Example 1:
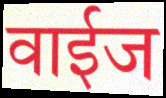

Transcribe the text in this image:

वाईज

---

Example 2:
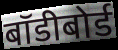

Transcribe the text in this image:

बॉडीबोर्ड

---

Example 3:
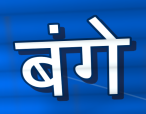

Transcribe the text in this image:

बंगे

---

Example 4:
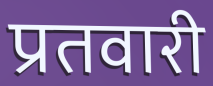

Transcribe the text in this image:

प्रतवारी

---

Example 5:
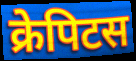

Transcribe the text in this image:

क्रेपिटस